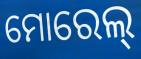
ମୋରେଲ୍